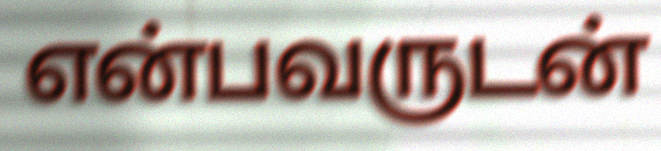
என்பவருடன்